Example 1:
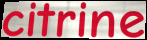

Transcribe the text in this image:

citrine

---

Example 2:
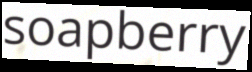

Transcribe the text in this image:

soapberry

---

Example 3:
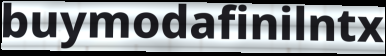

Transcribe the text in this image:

buymodafinilntx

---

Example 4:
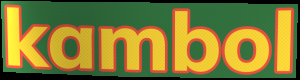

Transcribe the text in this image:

kambol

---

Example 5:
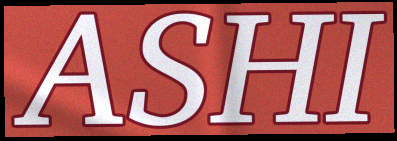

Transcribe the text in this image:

ASHI